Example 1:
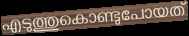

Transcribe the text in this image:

എടുത്തുകൊണ്ടുപോയത്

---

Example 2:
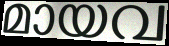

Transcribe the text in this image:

മായവ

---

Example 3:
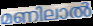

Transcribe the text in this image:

മണിലാൽ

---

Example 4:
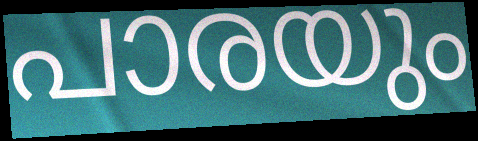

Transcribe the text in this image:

പാരയും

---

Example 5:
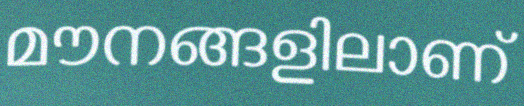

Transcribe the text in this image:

മൗനങ്ങളിലാണ്